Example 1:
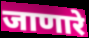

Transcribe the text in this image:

जाणारे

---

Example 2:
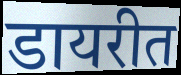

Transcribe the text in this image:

डायरीत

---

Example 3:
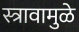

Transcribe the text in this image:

स्त्रावामुळे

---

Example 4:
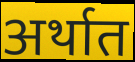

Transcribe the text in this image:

अर्थात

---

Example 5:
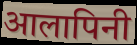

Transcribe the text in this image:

आलापिनी